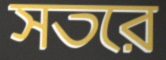
সতরে